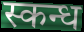
स्कन्ध